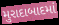
મુરાદાબાદમાં